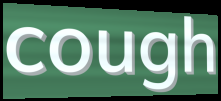
cough